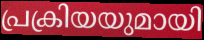
പ്രക്രിയയുമായി